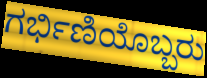
ಗರ್ಭಿಣಿಯೊಬ್ಬರು